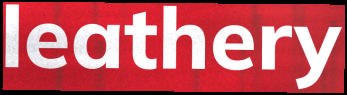
leathery